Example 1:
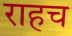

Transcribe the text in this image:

राहच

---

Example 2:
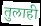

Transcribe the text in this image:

तुलाही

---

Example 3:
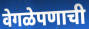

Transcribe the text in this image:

वेगळेपणाची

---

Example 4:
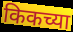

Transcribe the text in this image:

किकच्या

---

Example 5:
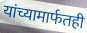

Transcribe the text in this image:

यांच्यामार्फतही